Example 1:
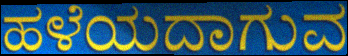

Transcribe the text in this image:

ಹಳೆಯದಾಗುವ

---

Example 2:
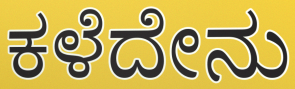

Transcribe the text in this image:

ಕಳೆದೇನು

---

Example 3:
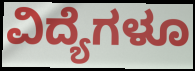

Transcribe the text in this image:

ವಿದ್ಯೆಗಳೂ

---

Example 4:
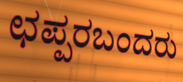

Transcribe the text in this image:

ಛಪ್ಪರಬಂದರು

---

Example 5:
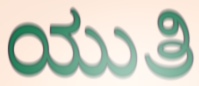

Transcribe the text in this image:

ಯುತಿ